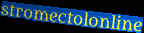
stromectolonline